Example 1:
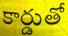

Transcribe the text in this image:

కార్డుతో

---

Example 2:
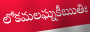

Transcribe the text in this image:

లోకమలఘ్నకీఋతిః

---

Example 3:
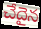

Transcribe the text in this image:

చేదైన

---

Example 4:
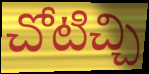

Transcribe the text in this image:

చోటిచ్చి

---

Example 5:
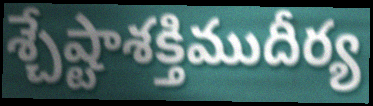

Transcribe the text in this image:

శ్చేష్టాశక్తిముదీర్య